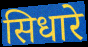
सिधारे